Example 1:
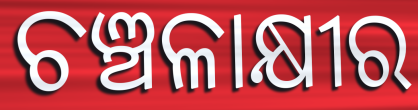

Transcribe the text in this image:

ଚଞ୍ଚଳାକ୍ଷୀର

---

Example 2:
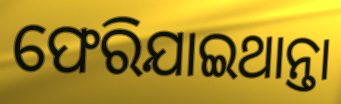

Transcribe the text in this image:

ଫେରିଯାଇଥାନ୍ତା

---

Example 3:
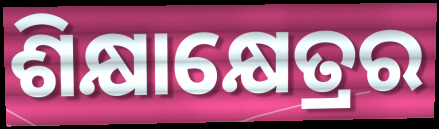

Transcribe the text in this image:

ଶିକ୍ଷାକ୍ଷେତ୍ରର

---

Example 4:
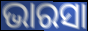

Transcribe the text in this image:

ଭାରସା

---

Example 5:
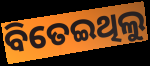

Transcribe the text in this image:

ବିତେଇଥିଲୁ